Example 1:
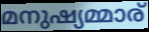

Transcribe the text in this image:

മനുഷ്യമ്മാര്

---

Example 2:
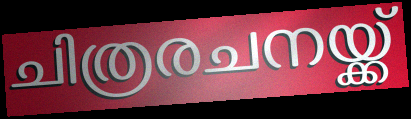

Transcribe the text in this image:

ചിത്രരചനയ്ക്ക്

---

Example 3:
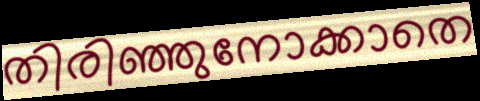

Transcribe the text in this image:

തിരിഞ്ഞുനോക്കാതെ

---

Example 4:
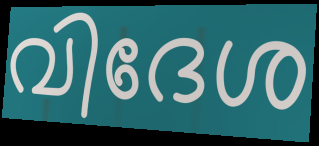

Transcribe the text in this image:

വിദേശ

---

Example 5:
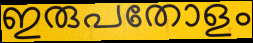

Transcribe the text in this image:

ഇരുപതോളം